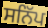
ਸਨਿੱਪ